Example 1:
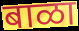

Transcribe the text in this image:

बाळा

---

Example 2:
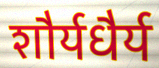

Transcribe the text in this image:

शौर्यधैर्य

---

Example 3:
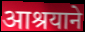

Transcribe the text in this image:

आश्रयाने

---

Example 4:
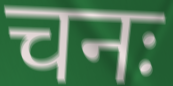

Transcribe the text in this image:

चनः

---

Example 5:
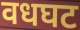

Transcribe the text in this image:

वधघट